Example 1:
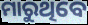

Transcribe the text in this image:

ମାରୁଥିବେ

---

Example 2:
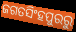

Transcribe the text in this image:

ଜଗତସିଂହପୁରରୁ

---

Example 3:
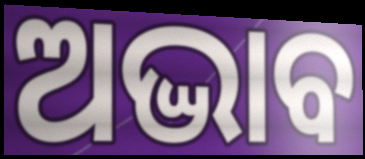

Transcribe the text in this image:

ଅଦ୍ଭାବ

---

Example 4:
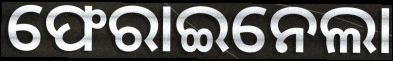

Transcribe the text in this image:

ଫେରାଇନେଲା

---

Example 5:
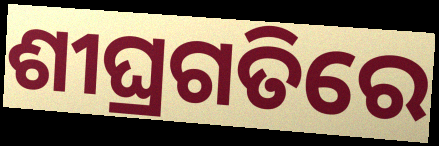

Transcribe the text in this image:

ଶୀଘ୍ରଗତିରେ